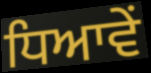
ਧਿਆਵੇਂ